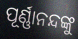
ପୂର୍ଣ୍ଣାନନ୍ଦଙ୍କୁ